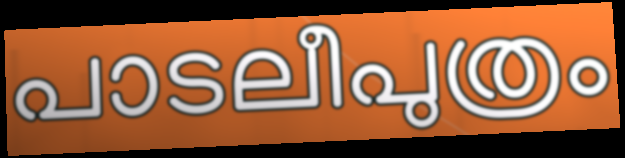
പാടലീപുത്രം